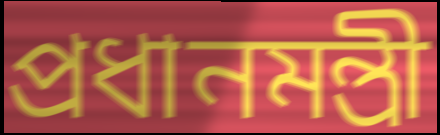
প্ৰধানমন্ত্ৰী